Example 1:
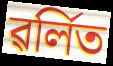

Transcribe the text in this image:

ৱৰ্লিত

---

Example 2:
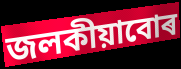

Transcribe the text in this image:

জলকীয়াবোৰ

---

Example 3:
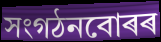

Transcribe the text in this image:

সংগঠনবোৰৰ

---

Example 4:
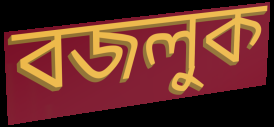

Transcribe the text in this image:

বজলুক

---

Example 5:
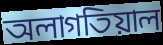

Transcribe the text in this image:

অলাগতিয়াল